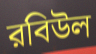
রবিউল